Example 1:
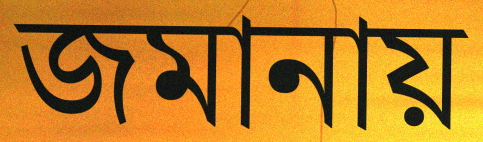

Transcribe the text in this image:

জমানায়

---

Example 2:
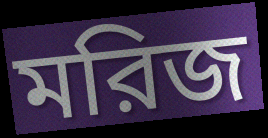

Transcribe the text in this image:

মরিজ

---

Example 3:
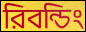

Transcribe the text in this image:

রিবন্ডিং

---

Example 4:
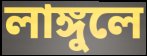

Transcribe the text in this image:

লাঙ্গুলে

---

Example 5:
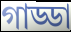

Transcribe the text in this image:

গাড্ডা